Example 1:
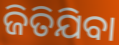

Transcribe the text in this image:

ଜିତିଯିବା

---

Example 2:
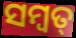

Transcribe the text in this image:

ସମ୍ବତ୍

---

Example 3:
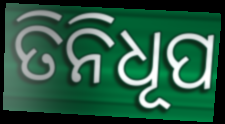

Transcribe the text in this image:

ତିନିଧୂପ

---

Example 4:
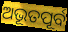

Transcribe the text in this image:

ଅଭୂତପୂର୍ବ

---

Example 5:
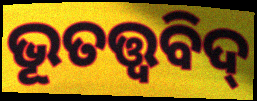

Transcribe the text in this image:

ଭୂତତ୍ତ୍ବବିଦ୍